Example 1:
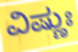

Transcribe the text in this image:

ವಿಷ್ಣುಃ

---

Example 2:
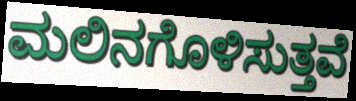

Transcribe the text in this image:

ಮಲಿನಗೊಳಿಸುತ್ತವೆ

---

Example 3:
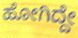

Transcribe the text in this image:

ಹೋಗಿದ್ದೇ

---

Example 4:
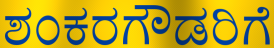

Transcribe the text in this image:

ಶಂಕರಗೌಡರಿಗೆ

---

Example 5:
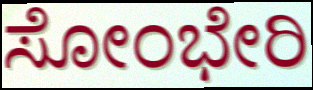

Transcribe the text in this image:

ಸೋಂಭೇರಿ